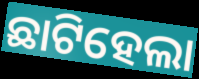
ଛାଟିହେଲା